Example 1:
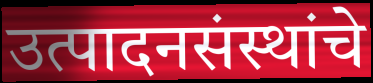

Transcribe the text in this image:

उत्पादनसंस्थांचे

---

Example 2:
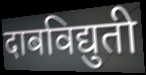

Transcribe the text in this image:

दाबविद्युती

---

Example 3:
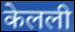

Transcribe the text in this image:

केलली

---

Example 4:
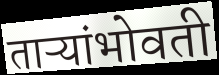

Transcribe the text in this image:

ताऱ्यांभोवती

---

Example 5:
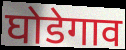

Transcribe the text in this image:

घोडेगाव